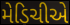
મેડિચીએ